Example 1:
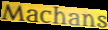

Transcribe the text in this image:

Machans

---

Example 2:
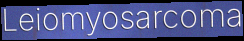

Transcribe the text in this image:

Leiomyosarcoma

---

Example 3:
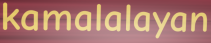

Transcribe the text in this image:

kamalalayan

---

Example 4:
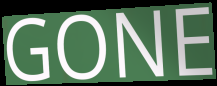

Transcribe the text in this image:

GONE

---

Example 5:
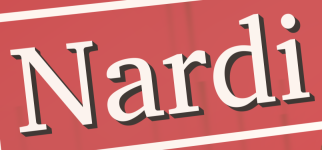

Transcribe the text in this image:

Nardi